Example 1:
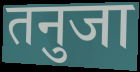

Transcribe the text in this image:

तनुजा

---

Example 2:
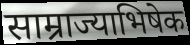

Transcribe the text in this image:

साम्राज्याभिषेक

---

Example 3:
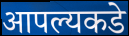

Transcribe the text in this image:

आपल्यकडे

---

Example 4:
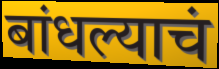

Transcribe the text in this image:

बांधल्याचं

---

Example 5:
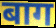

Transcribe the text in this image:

बाग